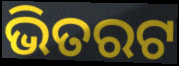
ଭିତରଟ